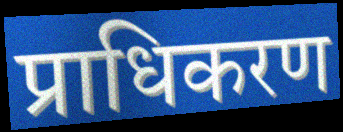
प्राधिकरण